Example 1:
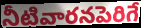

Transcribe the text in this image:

నీటివారనపెరిగే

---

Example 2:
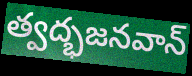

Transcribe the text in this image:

త్వద్భజనవాన్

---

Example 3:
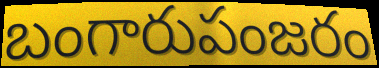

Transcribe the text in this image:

బంగారుపంజరం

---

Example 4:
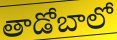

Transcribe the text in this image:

తాడోబాలో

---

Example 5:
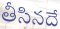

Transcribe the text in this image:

తీసినదే